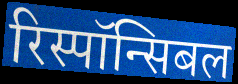
रिस्पॉन्सिबल